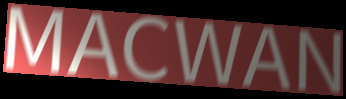
MACWAN